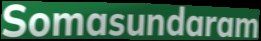
Somasundaram